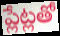
ప్లేట్లతో